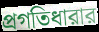
প্রগতিধারার